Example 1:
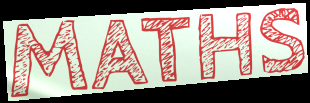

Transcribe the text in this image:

MATHS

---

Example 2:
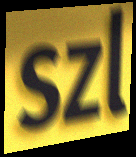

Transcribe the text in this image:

szl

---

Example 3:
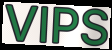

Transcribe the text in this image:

VIPS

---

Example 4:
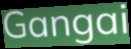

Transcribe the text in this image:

Gangai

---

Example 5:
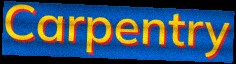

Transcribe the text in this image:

Carpentry